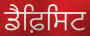
ਡੈਫ਼ਿਸਿਟ